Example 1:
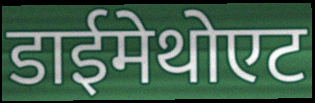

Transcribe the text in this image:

डाईमेथोएट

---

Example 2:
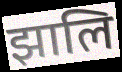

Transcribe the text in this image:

झालि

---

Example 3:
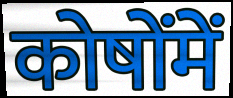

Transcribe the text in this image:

कोषोंमें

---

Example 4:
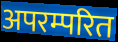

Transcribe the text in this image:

अपरम्परित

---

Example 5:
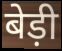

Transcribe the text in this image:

बेड़ी